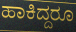
ಹಾಕಿದ್ದರೂ